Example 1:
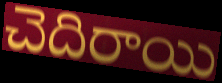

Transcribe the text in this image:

చెదిరాయి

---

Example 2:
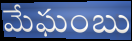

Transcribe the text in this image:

మేఘంబు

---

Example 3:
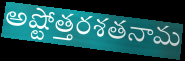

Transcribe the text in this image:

అష్టోత్తరశతనామ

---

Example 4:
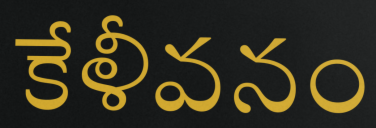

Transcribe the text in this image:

కేళీవనం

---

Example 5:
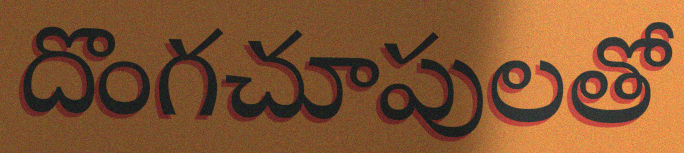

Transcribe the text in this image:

దొంగచూపులతో